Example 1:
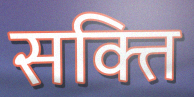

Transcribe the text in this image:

सक्ति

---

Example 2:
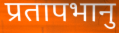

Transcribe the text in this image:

प्रतापभानु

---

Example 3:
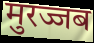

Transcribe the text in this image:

मुरज्जब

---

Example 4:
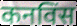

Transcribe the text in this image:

कनविंस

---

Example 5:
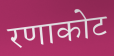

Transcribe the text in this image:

रणाकोट